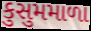
કુસુમમાળા